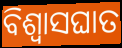
ବିଶ୍ବାସଘାତ